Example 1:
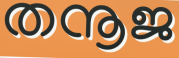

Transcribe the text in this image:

തനൂജ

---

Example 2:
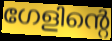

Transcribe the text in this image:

ഗേളിന്റെ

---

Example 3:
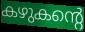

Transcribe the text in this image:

കഴുകന്റെ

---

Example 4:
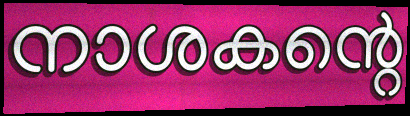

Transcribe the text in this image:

നാശകന്റെ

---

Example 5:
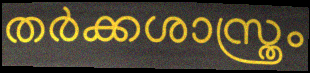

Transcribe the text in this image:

തർക്കശാസ്ത്രം